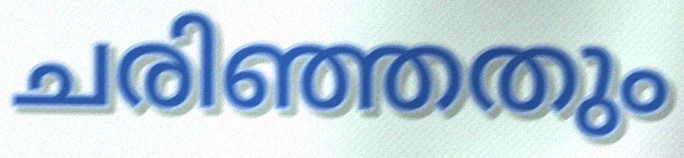
ചരിഞ്ഞതും